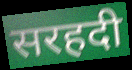
सरहदी